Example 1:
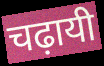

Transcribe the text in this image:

चढ़ायी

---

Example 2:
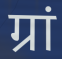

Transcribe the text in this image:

ग्रां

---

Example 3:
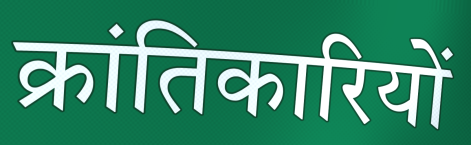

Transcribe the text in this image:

क्रांतिकारियों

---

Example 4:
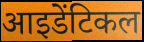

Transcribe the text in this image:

आइडेंटिकल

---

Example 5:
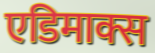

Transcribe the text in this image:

एडिमाक्स